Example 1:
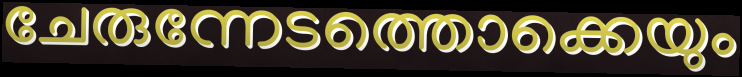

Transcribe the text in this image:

ചേരുന്നേടത്തൊക്കെയും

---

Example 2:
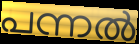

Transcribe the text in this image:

പന്നൽ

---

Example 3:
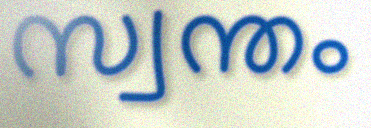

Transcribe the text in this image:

സ്വന്തം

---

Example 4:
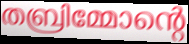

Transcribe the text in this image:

തബ്രിമ്മോന്റെ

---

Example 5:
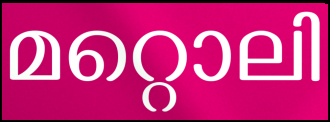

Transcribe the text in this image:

മറ്റൊലി